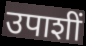
उपाशीं